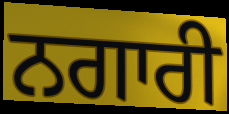
ਨਗਾਰੀ